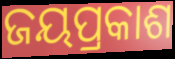
ଜୟପ୍ରକାଶ